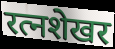
रत्नशेखर